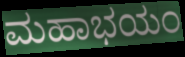
ಮಹಾಭಯಂ